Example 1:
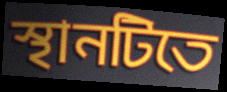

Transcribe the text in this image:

স্থানটিতে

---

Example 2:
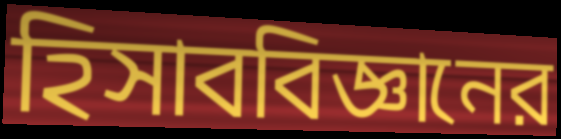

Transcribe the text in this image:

হিসাববিজ্ঞানের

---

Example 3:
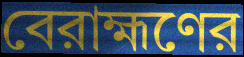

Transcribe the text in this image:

বেরাহ্মণের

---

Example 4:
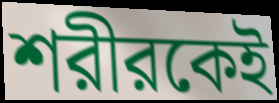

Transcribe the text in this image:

শরীরকেই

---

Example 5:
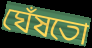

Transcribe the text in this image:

ঘেঁষতো